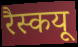
रैस्कयू